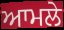
ਆਮਲੇ